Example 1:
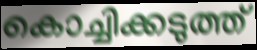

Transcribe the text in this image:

കൊച്ചിക്കടുത്ത്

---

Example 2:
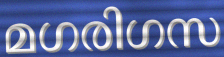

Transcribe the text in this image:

മഗരിഗസ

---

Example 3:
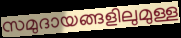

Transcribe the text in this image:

സമുദായങ്ങളിലുമുള്ള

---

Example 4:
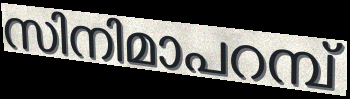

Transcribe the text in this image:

സിനിമാപറമ്പ്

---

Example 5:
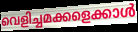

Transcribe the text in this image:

വെളിച്ചമക്കളെക്കാൾ